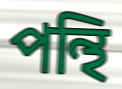
পন্থি